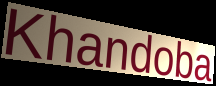
Khandoba